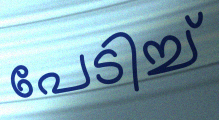
പേടിച്ച്